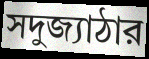
সদুজ্যাঠার